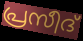
പ്രസീദ്